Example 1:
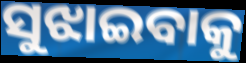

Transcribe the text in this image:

ସୁଝାଇବାକୁ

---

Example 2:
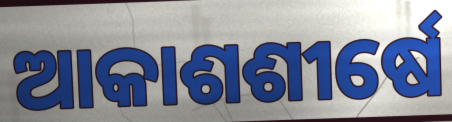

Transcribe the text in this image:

ଆକାଶଶୀର୍ଷେ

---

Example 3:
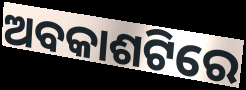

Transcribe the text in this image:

ଅବକାଶଟିରେ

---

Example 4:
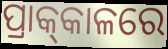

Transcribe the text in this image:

ପ୍ରାକ୍‌କାଳରେ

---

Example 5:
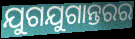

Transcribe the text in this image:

ଯୁଗଯୁଗାନ୍ତରର